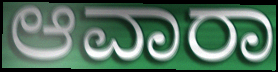
ಆವಾರಾ